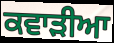
ਕਵਾੜੀਆ